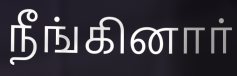
நீங்கினார்